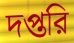
দপ্তরি